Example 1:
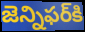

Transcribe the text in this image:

జెన్నిఫర్‌కి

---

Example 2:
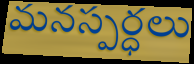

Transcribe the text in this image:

మనస్పర్ధలు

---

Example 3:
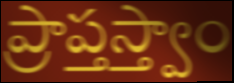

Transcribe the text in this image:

ప్రాప్తస్త్వాం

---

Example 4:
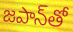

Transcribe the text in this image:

జపాన్‌తో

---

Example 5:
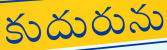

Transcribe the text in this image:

కుదురును